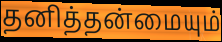
தனித்தன்மையும்